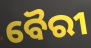
ବୈରୀ